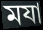
মযা